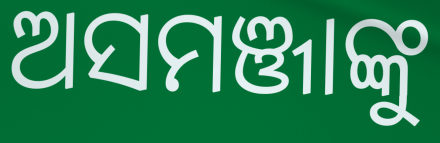
ଅସମଞ୍ଜାଙ୍କୁ